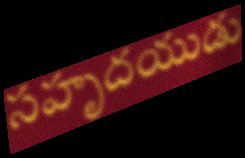
సహృదయుడు